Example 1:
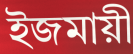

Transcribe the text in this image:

ইজমায়ী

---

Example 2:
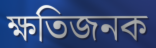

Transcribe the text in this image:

ক্ষতিজনক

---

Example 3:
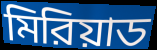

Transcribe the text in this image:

মিরিয়াড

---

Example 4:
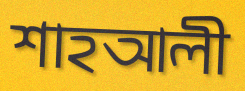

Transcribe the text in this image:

শাহআলী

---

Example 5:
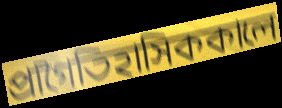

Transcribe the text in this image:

প্রাগৈতিহাসিককালে